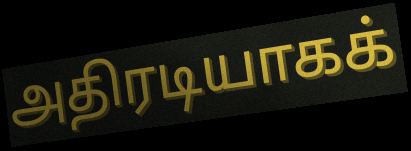
அதிரடியாகக்